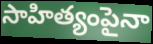
సాహిత్యంపైనా